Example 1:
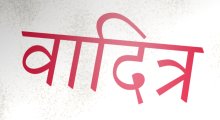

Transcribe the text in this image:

वादित्र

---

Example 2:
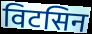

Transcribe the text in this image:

विटसिन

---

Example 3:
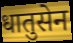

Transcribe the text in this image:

धातुसेन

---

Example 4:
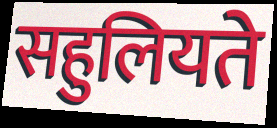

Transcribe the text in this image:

सहुलियते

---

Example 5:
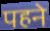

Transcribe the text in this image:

पहने